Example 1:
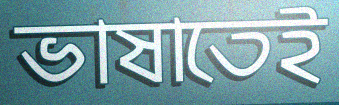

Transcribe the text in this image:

ভাষাতেই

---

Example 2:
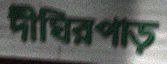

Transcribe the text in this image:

দীঘিরপাড়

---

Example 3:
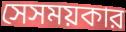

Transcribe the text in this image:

সেসময়কার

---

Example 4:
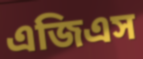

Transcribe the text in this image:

এজিএস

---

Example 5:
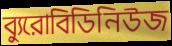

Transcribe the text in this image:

ব্যুরোবিডিনিউজ